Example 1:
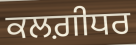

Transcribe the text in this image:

ਕਲਗ਼ੀਧਰ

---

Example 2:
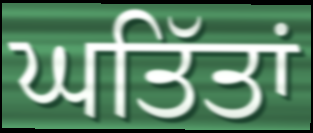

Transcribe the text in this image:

ਘਤਿੱਤਾਂ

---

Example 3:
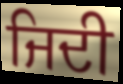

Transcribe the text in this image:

ਜਿਦੀ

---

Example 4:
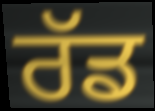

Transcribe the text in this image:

ਰੱਡ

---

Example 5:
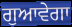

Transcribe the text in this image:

ਗੁਆਵੇਗਾ